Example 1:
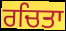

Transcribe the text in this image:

ਰਚਿਤਾ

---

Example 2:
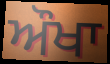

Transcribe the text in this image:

ਔਖਾ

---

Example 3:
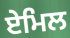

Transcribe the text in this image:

ਏਮਿਲ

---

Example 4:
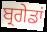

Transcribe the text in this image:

ਬ੍ਰਗੇਡਾਂ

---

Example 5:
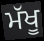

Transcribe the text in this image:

ਮੱਖੂ